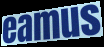
eamus